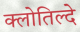
क्लोतिल्दे